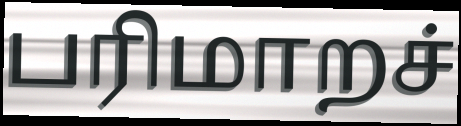
பரிமாறச்